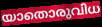
യാതൊരുവിധ